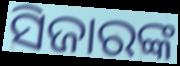
ସିଜାରଙ୍କ